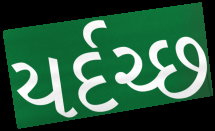
યર્દચ્છ